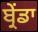
ਬ੍ਰੇਂਡਾ